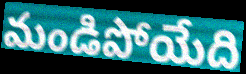
మండిపోయేది